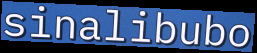
sinalibubo